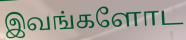
இவங்களோட